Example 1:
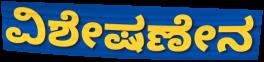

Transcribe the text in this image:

ವಿಶೇಷಣೇನ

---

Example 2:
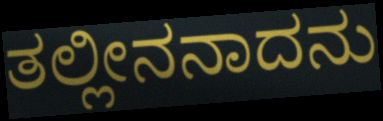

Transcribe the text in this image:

ತಲ್ಲೀನನಾದನು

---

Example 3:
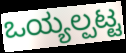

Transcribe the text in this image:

ಒಯ್ಯಲ್ಪಟ್ಟ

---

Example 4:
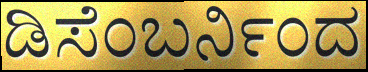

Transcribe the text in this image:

ಡಿಸೆಂಬರ್ನಿಂದ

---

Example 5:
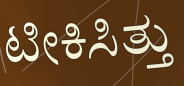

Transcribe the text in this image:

ಟೀಕಿಸಿತ್ತು